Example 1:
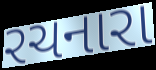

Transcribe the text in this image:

રચનારા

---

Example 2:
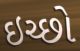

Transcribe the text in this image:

ઇચ્છો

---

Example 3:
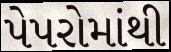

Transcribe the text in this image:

પેપરોમાંથી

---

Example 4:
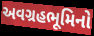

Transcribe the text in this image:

અવગ્રહભૂમિનો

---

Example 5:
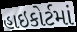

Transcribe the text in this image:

હાઇકોર્ટમાં